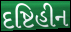
દષ્ટિહીન